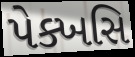
પેક્ખસિ